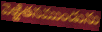
వెఱ్ఱితనముండును